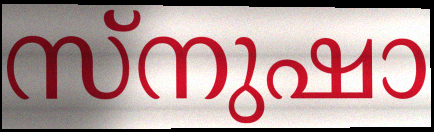
സ്നുഷാ